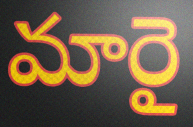
మారై